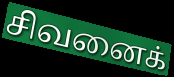
சிவனைக்